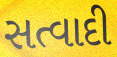
સત્વાદી